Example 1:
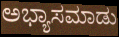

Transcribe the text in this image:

ಅಭ್ಯಾಸಮಾಡು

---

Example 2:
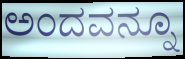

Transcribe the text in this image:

ಅಂದವನ್ನೂ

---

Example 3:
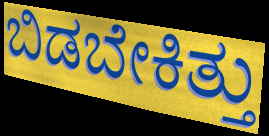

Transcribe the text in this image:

ಬಿಡಬೇಕಿತ್ತು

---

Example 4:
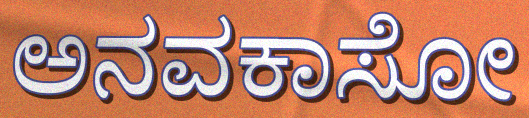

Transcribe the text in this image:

ಅನವಕಾಸೋ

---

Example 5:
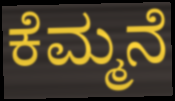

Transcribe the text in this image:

ಕೆಮ್ಮನೆ